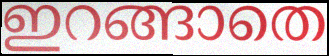
ഇറങ്ങാതെ